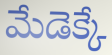
మేడెక్కే